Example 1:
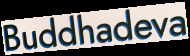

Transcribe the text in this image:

Buddhadeva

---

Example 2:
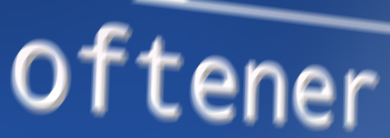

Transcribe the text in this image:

oftener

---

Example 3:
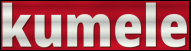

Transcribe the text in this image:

kumele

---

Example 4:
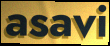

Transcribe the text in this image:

asavi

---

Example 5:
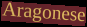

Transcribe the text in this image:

Aragonese